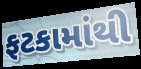
ફટકામાંથી